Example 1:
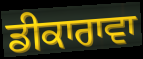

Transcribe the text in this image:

ਡੀਕਾਰਾਵਾ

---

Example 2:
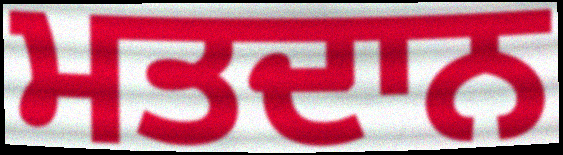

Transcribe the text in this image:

ਮਤਦਾਨ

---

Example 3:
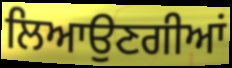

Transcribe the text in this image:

ਲਿਆਉਣਗੀਆਂ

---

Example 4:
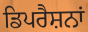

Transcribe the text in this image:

ਡਿਪਰੈਸ਼ਨਾਂ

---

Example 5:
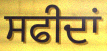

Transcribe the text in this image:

ਸਫੀਦਾਂ